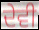
ਦੇਵੀ